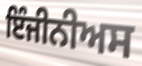
ਇੰਜੀਨੀਅਸ